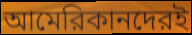
আমেরিকানদেরই